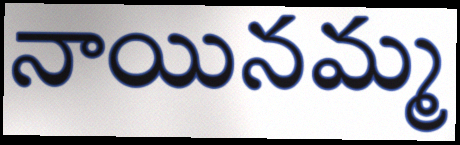
నాయినమ్మ